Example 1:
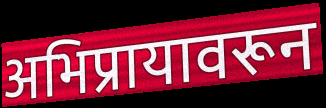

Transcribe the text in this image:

अभिप्रायावरून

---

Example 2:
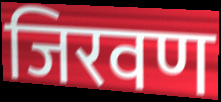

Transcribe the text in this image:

जिरवण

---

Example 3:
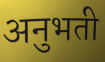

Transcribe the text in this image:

अनुभती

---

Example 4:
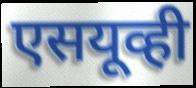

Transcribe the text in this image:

एसयूव्ही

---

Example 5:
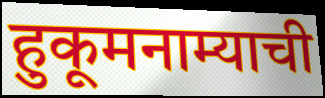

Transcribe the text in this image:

हुकूमनाम्याची